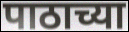
पाठाच्या